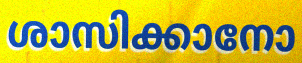
ശാസിക്കാനോ